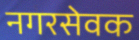
नगरसेवक